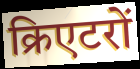
क्रिएटरों